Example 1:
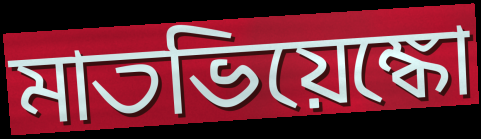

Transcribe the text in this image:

মাতভিয়েঙ্কো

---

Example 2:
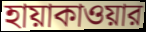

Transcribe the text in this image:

হায়াকাওয়ার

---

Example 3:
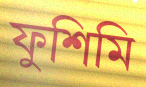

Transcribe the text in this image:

ফুশিমি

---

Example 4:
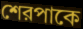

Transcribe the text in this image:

শেরপাকে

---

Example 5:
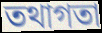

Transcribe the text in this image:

তথাগতা